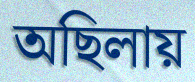
অছিলায়